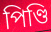
পিণ্ডি